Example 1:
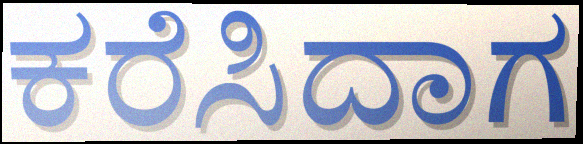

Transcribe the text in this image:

ಕರೆಸಿದಾಗ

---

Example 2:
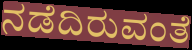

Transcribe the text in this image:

ನಡೆದಿರುವಂತೆ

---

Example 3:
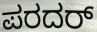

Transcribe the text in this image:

ಪರದರ್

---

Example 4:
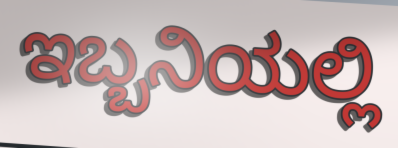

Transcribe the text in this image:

ಇಬ್ಬನಿಯಲ್ಲಿ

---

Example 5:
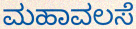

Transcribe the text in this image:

ಮಹಾವಲಸೆ